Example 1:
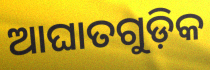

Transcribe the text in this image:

ଆଘାତଗୁଡ଼ିକ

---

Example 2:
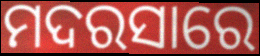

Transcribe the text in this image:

ମଦରସାରେ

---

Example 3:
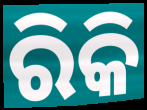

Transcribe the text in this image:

ରିକି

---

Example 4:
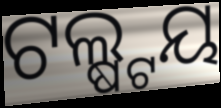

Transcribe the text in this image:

ଟଲ୍ଷ୍ଟୟ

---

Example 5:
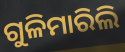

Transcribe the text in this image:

ଗୁଳିମାରିଲି